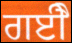
ਗਈੈ